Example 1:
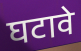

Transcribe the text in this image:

घटावे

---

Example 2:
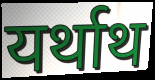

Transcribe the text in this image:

यर्थाथ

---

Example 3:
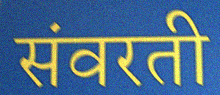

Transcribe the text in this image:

संवरती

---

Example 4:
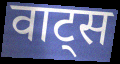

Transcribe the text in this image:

वाट्स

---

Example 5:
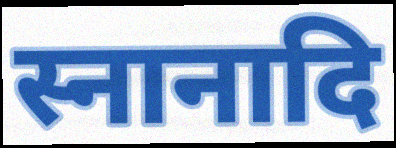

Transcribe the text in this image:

स्नानादि